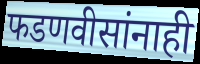
फडणवीसांनाही